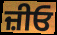
ਜ਼ੀਓ